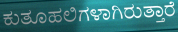
ಕುತೂಹಲಿಗಳಾಗಿರುತ್ತಾರೆ